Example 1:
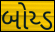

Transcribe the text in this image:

બોય્ડ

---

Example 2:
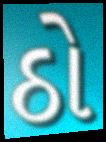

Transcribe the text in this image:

ઠો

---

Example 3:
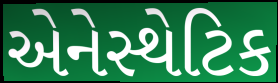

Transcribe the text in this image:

એનેસ્થેટિક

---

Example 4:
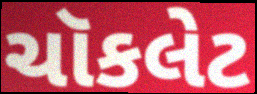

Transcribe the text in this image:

ચૉકલેટ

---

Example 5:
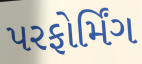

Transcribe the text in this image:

પરફોર્મિંગ